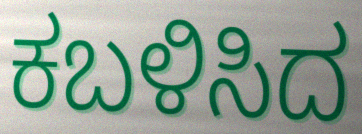
ಕಬಳಿಸಿದ